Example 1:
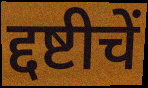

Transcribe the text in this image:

द्दष्टीचें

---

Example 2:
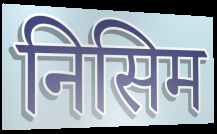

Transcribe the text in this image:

निसिम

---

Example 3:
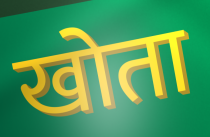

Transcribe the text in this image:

खोता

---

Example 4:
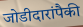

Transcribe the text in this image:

जोडीदारांपैकी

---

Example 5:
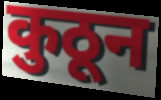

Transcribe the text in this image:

कुठून